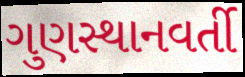
ગુણસ્થાનવર્તી